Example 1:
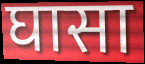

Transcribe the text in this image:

घासा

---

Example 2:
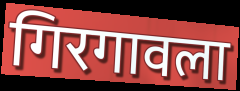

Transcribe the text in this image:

गिरगावला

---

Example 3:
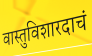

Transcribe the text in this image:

वास्तुविशारदाचं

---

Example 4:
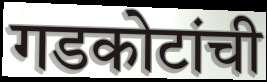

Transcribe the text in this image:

गडकोटांची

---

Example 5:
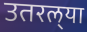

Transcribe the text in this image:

उतरल्या